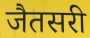
जैतसरी